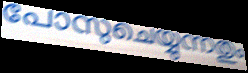
പോസുചെയ്യുന്നതും